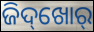
ଜିଦ୍‌ଖୋର୍